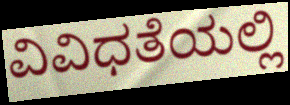
ವಿವಿಧತೆಯಲ್ಲಿ